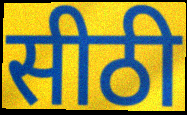
सीठी